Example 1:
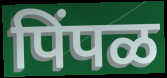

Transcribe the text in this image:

पिंपळ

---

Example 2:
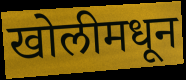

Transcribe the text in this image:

खोलीमधून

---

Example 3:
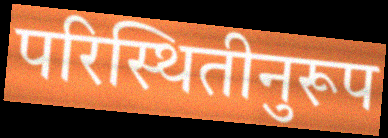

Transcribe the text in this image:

परिस्थितीनुरूप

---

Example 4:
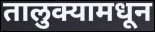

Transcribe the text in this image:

तालुक्यामधून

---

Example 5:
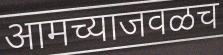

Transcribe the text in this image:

आमच्याजवळच